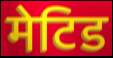
मेटिड